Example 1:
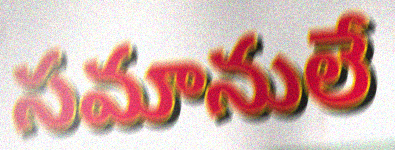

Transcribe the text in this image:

సమానులే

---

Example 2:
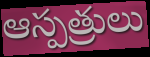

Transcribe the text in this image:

ఆస్పత్రులు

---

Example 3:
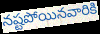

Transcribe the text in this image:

నష్టపోయినవారికి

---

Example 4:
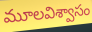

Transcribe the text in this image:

మూలవిశ్వాసం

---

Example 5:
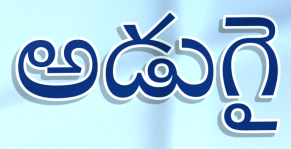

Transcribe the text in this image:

అడుగై